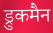
ड्रुकमैन